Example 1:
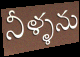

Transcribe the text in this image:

నీళ్ళను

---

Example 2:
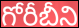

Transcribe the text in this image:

గోరీబీని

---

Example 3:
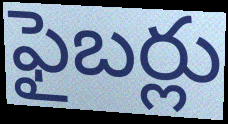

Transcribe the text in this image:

ఫైబర్లు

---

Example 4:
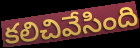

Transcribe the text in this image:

కలిచివేసింది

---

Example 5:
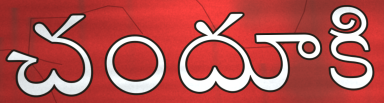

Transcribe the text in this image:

చందూకి